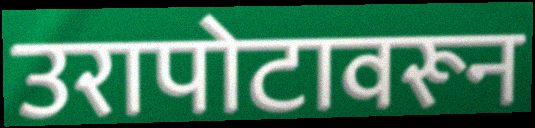
उरापोटावरून